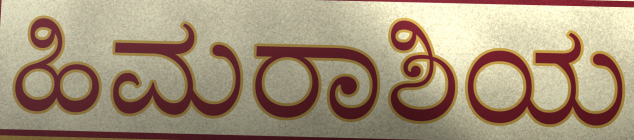
ಹಿಮರಾಶಿಯ